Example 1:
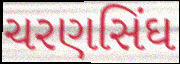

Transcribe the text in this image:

ચરણસિંઘ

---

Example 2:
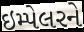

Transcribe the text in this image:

ઇમ્પેલરને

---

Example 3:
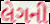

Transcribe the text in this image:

લેગની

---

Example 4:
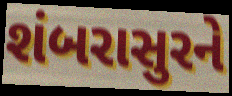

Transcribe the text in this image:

શંબરાસુરને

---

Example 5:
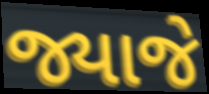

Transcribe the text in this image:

જ્યાજે